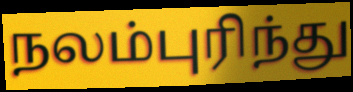
நலம்புரிந்து